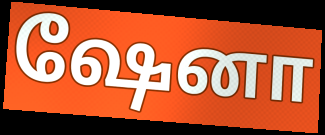
ஷேனா